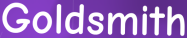
Goldsmith